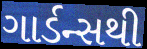
ગાર્ડન્સથી